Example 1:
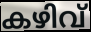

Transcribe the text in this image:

കഴിവ്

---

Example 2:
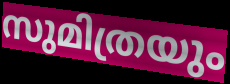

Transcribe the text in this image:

സുമിത്രയും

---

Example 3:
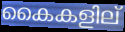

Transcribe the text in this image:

കൈകളില്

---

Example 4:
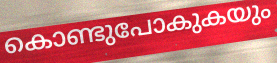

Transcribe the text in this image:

കൊണ്ടുപോകുകയും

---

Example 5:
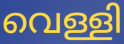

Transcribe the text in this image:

വെള്ളി